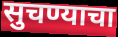
सुचण्याचा